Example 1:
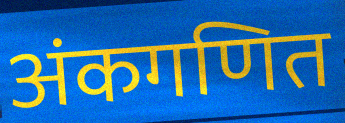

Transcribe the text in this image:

अंकगणित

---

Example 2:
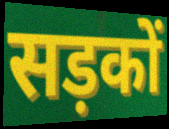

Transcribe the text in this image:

सड़कों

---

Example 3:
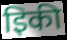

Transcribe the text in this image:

इिकी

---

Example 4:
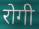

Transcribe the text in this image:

रोगी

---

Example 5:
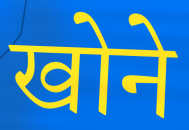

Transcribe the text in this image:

खोने